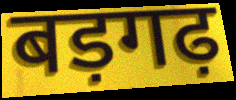
बड़गढ़